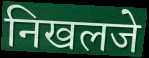
निखलजे